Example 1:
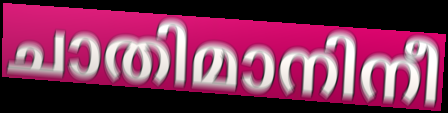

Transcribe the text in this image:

ചാതിമാനിനീ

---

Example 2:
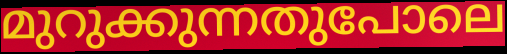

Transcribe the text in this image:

മുറുക്കുന്നതുപോലെ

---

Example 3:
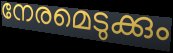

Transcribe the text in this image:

നേരമെടുക്കും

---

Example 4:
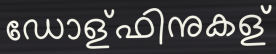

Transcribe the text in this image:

ഡോള്ഫിനുകള്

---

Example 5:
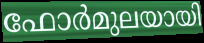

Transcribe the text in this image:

ഫോർമുലയായി